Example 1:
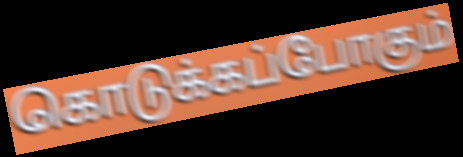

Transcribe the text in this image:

கொடுக்கப்போகும்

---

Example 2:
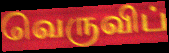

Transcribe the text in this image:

வெருவிப்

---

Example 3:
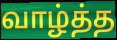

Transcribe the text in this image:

வாழ்த்த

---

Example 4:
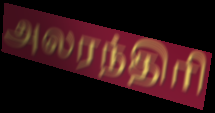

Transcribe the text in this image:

அலரந்திரி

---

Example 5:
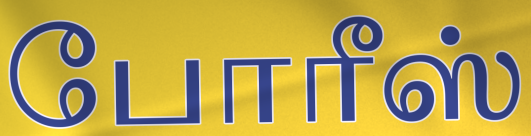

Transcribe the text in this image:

போரீஸ்